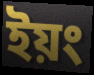
ইয়ং